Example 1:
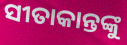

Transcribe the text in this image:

ସୀତାକାନ୍ତଙ୍କୁ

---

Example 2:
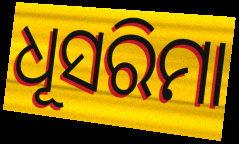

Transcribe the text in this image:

ଧୂସରିମା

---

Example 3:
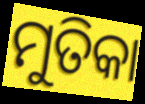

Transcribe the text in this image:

ମୁତିକା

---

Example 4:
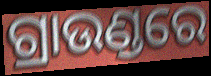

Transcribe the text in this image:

ଗ୍ରାଉଣ୍ଡରେ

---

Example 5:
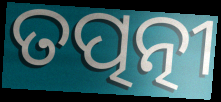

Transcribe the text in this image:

ତତ୍ପତ୍ନୀ